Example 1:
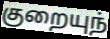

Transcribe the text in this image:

குறையுந்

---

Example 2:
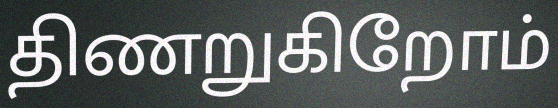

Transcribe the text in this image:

திணறுகிறோம்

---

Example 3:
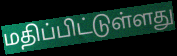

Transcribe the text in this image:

மதிப்பிட்டுள்ளது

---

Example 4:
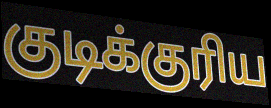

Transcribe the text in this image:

குடிக்குரிய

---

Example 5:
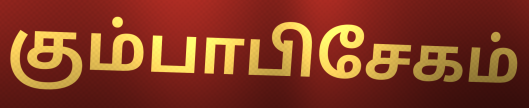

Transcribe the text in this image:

கும்பாபிசேகம்